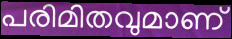
പരിമിതവുമാണ്